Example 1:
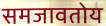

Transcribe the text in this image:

समजावतोय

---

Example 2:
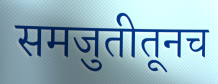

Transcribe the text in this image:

समजुतीतूनच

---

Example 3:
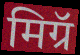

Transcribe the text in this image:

मिग्रॅ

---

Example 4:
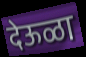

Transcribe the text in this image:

देऊळा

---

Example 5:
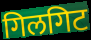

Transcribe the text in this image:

गिलगिट